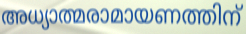
അധ്യാത്മരാമായണത്തിന്